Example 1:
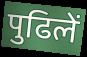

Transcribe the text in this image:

पुढिलें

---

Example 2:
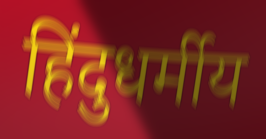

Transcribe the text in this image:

हिंदुधर्मीय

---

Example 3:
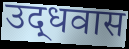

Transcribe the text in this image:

उद्धवास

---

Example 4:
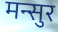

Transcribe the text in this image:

मन्सुर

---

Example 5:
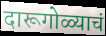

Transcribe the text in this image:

दारूगोळ्याचं